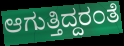
ಆಗುತ್ತಿದ್ದರಂತೆ